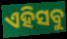
ଏହିସବୁ